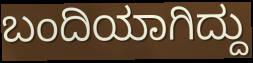
ಬಂದಿಯಾಗಿದ್ದು